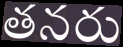
తనరు